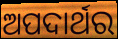
ଅପଦାର୍ଥର